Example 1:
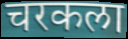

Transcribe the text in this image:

चरकला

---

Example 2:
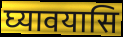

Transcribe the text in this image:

घ्यावयासि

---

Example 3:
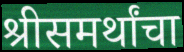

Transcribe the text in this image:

श्रीसमर्थांचा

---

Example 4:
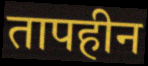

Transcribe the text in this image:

तापहीन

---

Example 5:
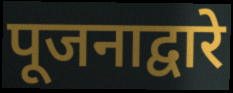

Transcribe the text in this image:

पूजनाद्वारे